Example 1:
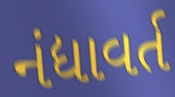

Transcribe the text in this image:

નંદ્યાવર્ત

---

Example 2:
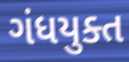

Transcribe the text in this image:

ગંધયુક્ત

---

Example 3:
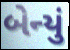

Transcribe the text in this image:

બેન્યું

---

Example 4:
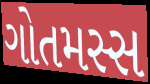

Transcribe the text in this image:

ગોતમસ્સ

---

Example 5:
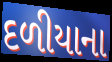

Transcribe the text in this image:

દળીયાના